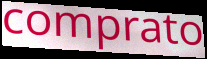
comprato